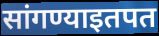
सांगण्याइतपत